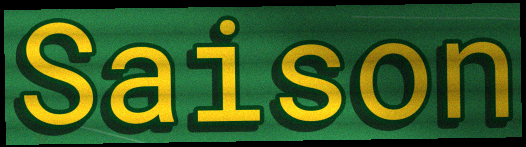
Saison